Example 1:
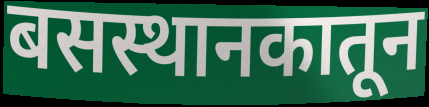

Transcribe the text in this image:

बसस्थानकातून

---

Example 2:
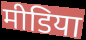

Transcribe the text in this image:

मीडिया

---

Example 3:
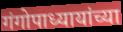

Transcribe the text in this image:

गंगोपाध्यायांच्या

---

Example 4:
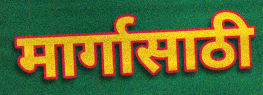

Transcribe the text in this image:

मार्गासाठी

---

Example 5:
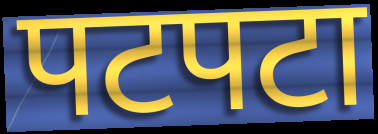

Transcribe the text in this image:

पटपटा